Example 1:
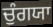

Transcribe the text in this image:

ਚੁੰਗਯਾ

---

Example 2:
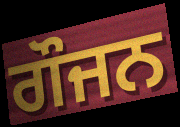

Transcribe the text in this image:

ਗੌਜਨ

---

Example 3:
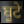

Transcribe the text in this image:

ਬੂਟੇ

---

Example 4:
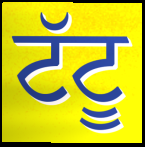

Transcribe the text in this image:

ਟੱਟੂ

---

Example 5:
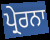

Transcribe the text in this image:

ਪ੍ਰੇਰਨਾ